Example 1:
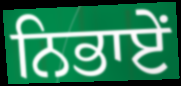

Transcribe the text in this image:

ਨਿਭਾਏਂ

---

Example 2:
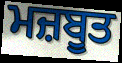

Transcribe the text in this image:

ਮਜ਼ਬੂਤ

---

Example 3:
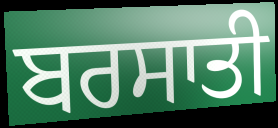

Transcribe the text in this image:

ਬਰਸਾਤੀ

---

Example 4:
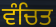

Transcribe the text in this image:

ਵੰਚਿਤ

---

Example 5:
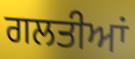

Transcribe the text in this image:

ਗਲਤੀਆਂ